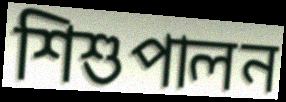
শিশুপালন